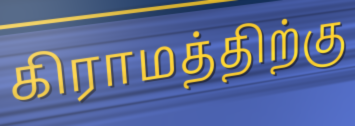
கிராமத்திற்கு